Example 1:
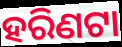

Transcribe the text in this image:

ହରିଣଟା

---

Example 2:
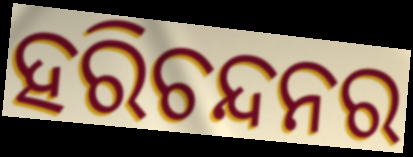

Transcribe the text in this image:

ହରିଚନ୍ଦନର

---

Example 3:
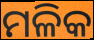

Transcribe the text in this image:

ମଳିକ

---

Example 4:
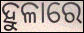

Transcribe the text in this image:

ହୁଳାରେ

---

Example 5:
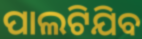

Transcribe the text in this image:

ପାଲଟିଯିବ